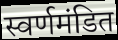
स्वर्णमंडित